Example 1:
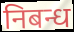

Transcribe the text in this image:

निबन्‍ध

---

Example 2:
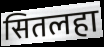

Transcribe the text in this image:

सितलहा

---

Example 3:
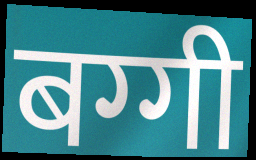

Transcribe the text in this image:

बग्‍गी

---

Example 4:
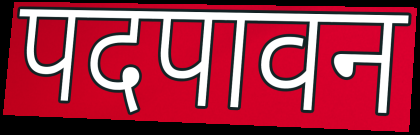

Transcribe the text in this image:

पदपावन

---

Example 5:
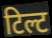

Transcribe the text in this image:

टिल्ट